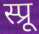
स्प्रू